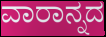
ವಾರಾನ್ನದ